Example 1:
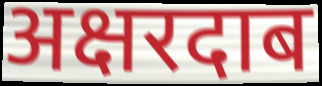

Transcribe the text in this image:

अक्षरदाब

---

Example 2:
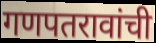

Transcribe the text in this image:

गणपतरावांची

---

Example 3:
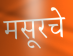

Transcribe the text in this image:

मसूरचे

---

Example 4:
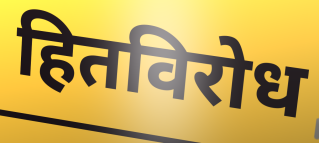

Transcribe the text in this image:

हितविरोध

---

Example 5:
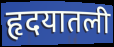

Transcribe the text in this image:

हृदयातली